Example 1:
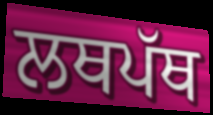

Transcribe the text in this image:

ਲਥਪੱਥ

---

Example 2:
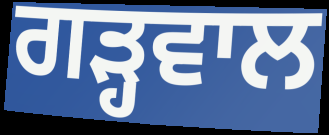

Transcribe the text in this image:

ਗੜ੍ਹਵਾਲ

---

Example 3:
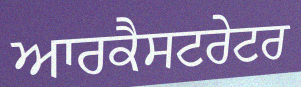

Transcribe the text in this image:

ਆਰਕੈਸਟਰੇਟਰ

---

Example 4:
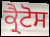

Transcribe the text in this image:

ਕ੍ਰੈਟੋਸ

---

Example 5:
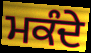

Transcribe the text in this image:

ਮਕੰਦੇ